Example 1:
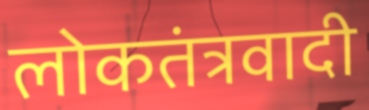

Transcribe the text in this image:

लोकतंत्रवादी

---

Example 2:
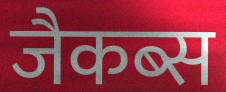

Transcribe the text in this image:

जैकब्स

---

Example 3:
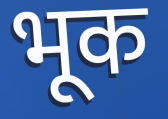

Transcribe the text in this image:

भूक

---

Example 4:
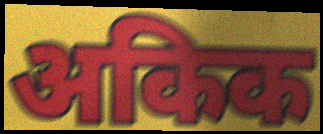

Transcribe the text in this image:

अकिक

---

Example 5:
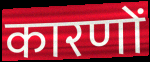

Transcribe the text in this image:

कारणों